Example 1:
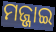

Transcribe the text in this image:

ମଜ୍ଜାଇ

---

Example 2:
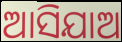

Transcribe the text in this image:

ଆସିଯାଅ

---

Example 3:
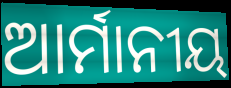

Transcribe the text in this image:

ଆର୍ମାନୀୟ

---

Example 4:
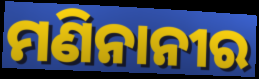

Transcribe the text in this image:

ମଣିନାନୀର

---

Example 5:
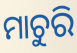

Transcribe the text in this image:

ମାଚୁରି